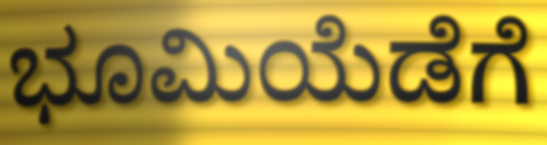
ಭೂಮಿಯೆಡೆಗೆ